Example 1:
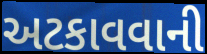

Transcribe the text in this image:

અટકાવવાની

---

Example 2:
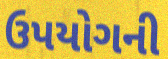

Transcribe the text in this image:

ઉપયોગની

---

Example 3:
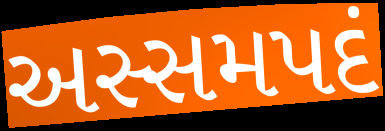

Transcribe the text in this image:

અસ્સમપદં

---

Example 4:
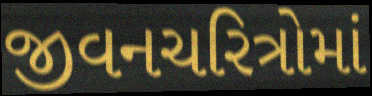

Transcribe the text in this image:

જીવનચરિત્રોમાં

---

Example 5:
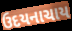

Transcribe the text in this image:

ઉદયનાચાય